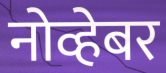
नोव्हेबर